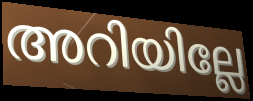
അറിയില്ലേ